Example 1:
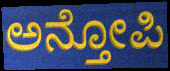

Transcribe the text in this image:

ಅನ್ತೋಪಿ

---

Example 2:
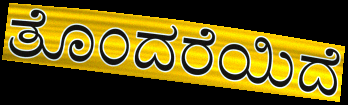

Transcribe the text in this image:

ತೊಂದರೆಯಿದೆ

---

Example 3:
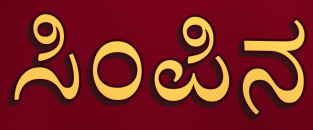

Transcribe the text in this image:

ಸಿಂಪಿನ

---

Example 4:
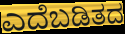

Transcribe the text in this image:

ಎದೆಬಡಿತದ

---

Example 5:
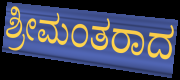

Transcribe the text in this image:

ಶ್ರೀಮಂತರಾದ